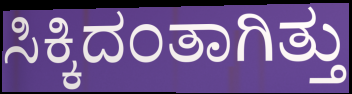
ಸಿಕ್ಕಿದಂತಾಗಿತ್ತು